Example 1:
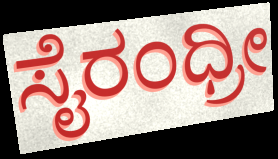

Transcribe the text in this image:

ಸೈರಂಧ್ರೀ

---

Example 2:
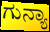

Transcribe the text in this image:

ಗುನ್ಯಾ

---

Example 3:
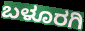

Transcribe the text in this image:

ಬಳೂರಗಿ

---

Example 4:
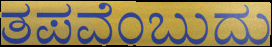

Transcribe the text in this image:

ತಪವೆಂಬುದು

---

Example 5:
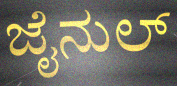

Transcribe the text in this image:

ಜೈನುಲ್